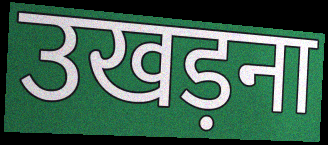
उखड़ना